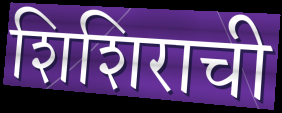
शिशिराची